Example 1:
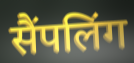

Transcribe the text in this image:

सैंपलिंग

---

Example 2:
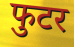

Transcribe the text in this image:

फुटर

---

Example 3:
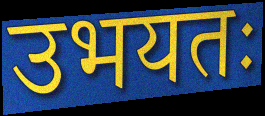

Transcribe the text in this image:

उभयतः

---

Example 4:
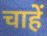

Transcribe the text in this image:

चाहें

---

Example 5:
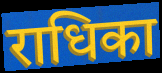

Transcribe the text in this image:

राधिका